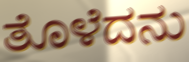
ತೊಳೆದನು